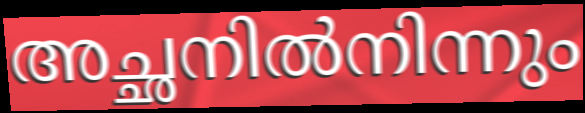
അച്ഛനിൽനിന്നും